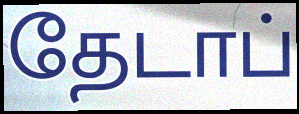
தேடாப்